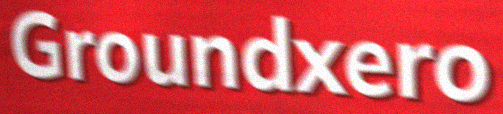
Groundxero